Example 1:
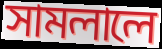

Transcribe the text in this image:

সামলালে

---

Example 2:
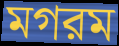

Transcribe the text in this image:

মগরম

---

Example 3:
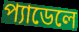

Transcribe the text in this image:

প্যাডেলে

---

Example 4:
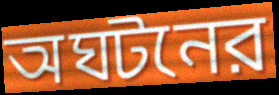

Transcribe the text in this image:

অঘটনের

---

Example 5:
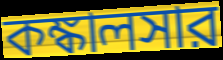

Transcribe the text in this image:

কঙ্কালসার